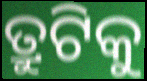
ତ୍ରୁଟିକୁ